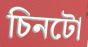
চিনটো